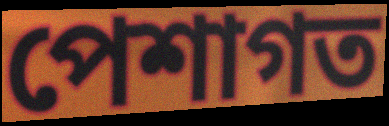
পেশাগত